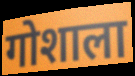
गोशाला